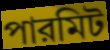
পারমিট